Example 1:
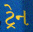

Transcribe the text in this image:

ટ્રેન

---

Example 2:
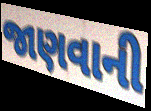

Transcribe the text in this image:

જાણવાની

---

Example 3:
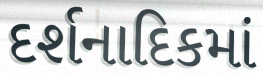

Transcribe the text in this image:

દર્શનાદિકમાં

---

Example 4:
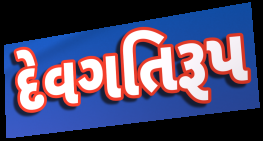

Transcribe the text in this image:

દેવગતિરૂપ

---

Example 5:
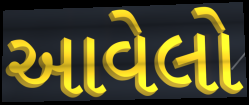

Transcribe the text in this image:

આવેલો